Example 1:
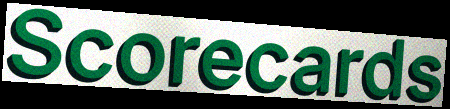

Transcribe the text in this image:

Scorecards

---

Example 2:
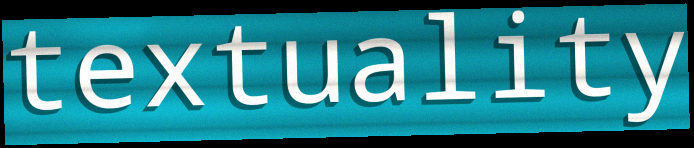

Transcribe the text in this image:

textuality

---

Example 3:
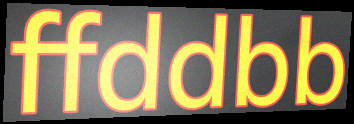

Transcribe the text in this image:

ffddbb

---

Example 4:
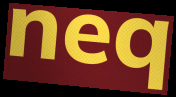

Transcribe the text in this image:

neq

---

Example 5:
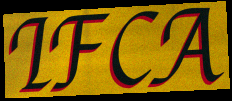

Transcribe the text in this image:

IFCA